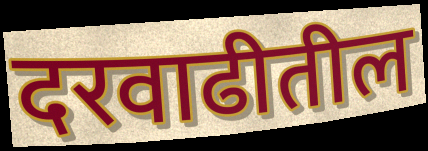
दरवाढीतील